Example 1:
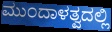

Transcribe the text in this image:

ಮುಂದಾಳತ್ವದಲ್ಲಿ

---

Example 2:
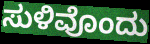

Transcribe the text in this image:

ಸುಳಿವೊಂದು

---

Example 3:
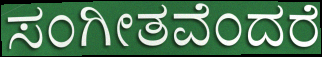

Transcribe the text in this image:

ಸಂಗೀತವೆಂದರೆ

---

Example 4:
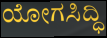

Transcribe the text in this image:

ಯೋಗಸಿದ್ಧಿ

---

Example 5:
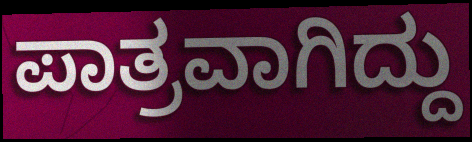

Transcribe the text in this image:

ಪಾತ್ರವಾಗಿದ್ದು